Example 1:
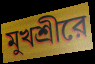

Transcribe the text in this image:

মুখশ্রীরে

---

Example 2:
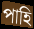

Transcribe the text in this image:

পাহি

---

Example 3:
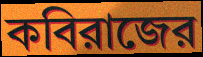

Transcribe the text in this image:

কবিরাজের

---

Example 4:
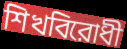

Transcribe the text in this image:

শিখবিরোধী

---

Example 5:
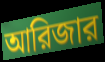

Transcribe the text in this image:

আরিজার